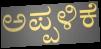
ಅಪ್ಪಳಿಕೆ